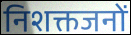
निशक्तजनों